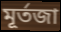
মূর্তজা